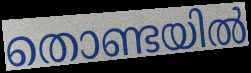
തൊണ്ടയിൽ